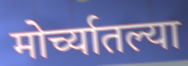
मोर्च्यातल्या